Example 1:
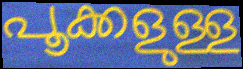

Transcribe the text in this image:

പൂക്കളുള്ള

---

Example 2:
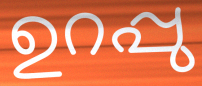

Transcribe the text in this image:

ഉറപ്പു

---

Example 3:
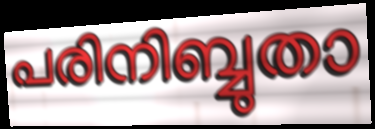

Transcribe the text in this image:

പരിനിബ്ബുതാ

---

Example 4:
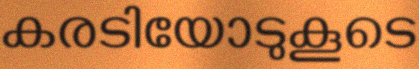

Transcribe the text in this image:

കരടിയോടുകൂടെ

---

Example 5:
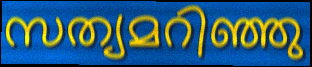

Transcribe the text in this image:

സത്യമറിഞ്ഞു